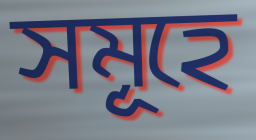
সমূহে